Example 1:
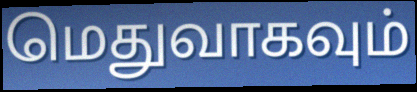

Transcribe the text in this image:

மெதுவாகவும்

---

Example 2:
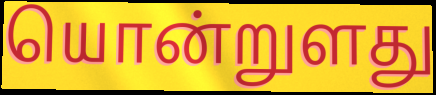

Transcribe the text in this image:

யொன்றுளது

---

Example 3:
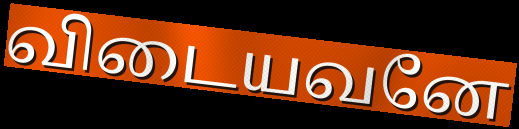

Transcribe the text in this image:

விடையவனே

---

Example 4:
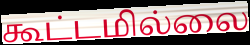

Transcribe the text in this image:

கூட்டமில்லை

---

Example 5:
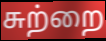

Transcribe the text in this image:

சுற்றை